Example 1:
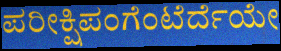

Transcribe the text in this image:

ಪರೀಕ್ಷಿಪಂಗೆಂಟೆರ್ದೆಯೇ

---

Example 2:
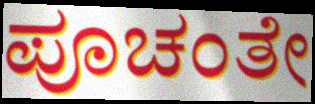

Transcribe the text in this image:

ಪೂಚಂತೇ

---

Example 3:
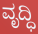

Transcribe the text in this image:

ವೃದ್ಧಿ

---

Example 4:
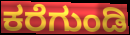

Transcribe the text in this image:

ಕರೆಗುಂಡಿ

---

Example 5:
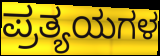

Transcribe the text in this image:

ಪ್ರತ್ಯಯಗಳ